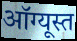
ऑग्यूस्त